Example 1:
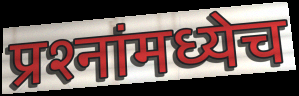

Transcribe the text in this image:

प्रश्नांमध्येच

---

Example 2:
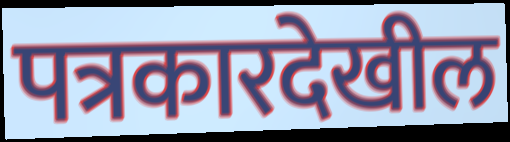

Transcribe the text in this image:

पत्रकारदेखील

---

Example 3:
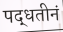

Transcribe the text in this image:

पद्धतीनं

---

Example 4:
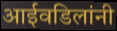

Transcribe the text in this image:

आईवडिलांनी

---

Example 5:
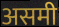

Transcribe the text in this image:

असमी